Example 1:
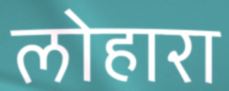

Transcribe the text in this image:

लोहारा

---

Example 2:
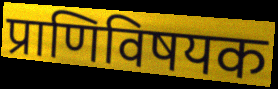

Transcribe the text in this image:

प्राणिविषयक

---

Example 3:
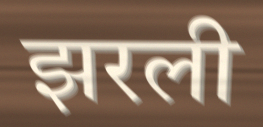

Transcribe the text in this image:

झरली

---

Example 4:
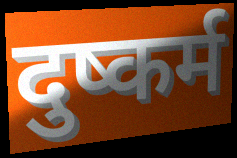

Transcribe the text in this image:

दुष्कर्म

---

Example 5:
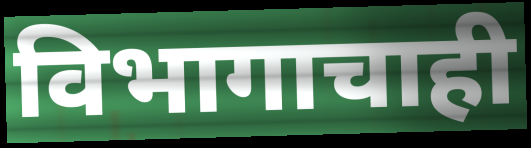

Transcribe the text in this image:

विभागाचाही